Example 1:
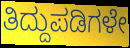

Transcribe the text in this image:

ತಿದ್ದುಪಡಿಗಳೇ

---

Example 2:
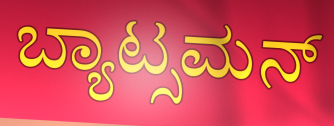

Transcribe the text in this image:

ಬ್ಯಾಟ್ಸಮನ್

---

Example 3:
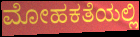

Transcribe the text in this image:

ಮೋಹಕತೆಯಲ್ಲಿ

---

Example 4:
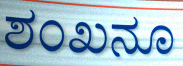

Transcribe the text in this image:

ಶಂಖನೂ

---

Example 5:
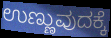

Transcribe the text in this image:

ಉಣ್ಣುವುದಕ್ಕೆ